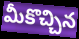
మీకొచ్చిన